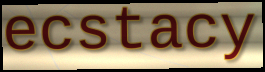
ecstacy